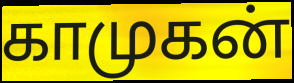
காமுகன்